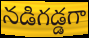
నడిగడ్డగా